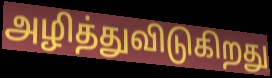
அழித்துவிடுகிறது